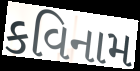
કવિનામ